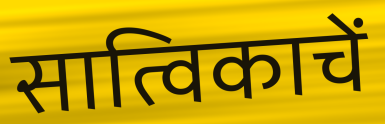
सात्विकाचें